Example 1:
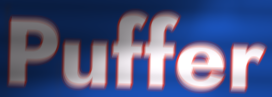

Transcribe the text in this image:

Puffer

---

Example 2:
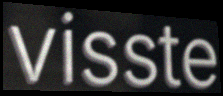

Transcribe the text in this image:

visste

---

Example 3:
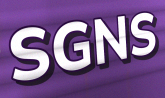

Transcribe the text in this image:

SGNS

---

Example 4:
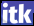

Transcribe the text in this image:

itk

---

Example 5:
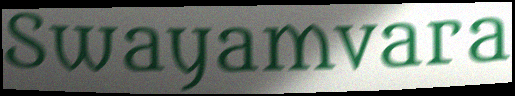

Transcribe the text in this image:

Swayamvara